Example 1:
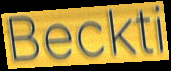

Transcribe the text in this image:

Beckti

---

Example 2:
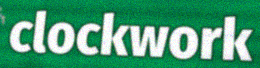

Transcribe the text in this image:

clockwork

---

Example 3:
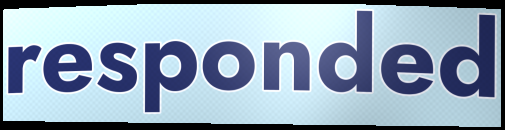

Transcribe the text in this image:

responded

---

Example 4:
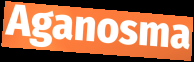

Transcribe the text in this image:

Aganosma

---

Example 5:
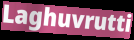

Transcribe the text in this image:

Laghuvrutti